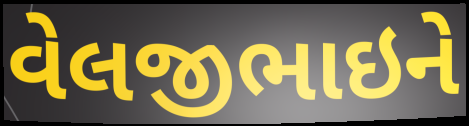
વેલજીભાઇને